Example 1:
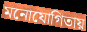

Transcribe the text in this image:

মনোযোগিতায়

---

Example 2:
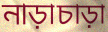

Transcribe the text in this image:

নাড়াচাড়া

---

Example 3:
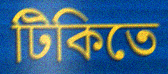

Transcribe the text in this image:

টিকিতে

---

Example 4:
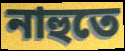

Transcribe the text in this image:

নাহুতে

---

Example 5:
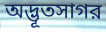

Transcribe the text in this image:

অদ্ভূতসাগর